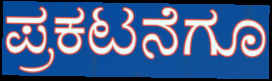
ಪ್ರಕಟನೆಗೂ